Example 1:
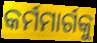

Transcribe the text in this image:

କର୍ମମାର୍ଗକୁ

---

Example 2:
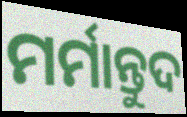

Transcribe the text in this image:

ମର୍ମାନ୍ତୁଦ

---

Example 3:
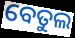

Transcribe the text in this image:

ବେତୁଲ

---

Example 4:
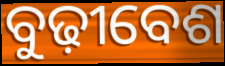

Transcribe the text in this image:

ବୁଢ଼ୀବେଶ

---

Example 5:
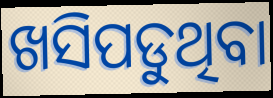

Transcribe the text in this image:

ଖସିପଡୁଥିବା